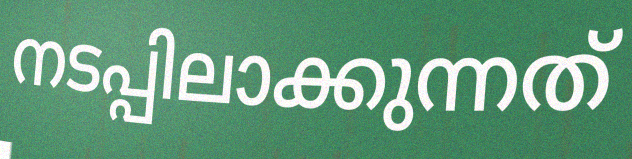
നടപ്പിലാക്കുന്നത്